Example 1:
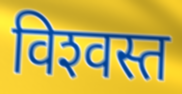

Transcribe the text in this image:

विश्‍वस्त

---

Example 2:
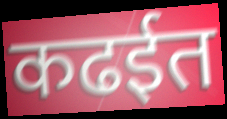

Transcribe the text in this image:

कढईत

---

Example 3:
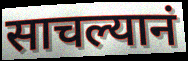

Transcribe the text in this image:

साचल्यानं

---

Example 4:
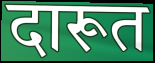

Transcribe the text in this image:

दारूत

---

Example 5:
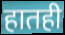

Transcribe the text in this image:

हातही